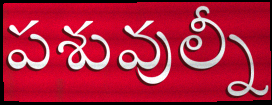
పశువుల్నీ